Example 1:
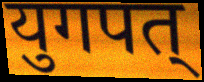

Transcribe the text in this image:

युगपत्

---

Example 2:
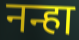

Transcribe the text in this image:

नन्हा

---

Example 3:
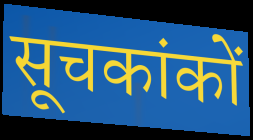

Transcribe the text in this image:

सूचकांकों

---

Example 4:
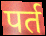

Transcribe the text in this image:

पर्त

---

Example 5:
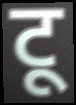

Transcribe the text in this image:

टू